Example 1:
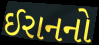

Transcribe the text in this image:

ઈરાનનો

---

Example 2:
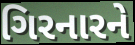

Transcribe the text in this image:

ગિરનારને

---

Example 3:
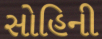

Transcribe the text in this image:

સોહિની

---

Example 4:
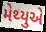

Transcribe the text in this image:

મેથ્યુએ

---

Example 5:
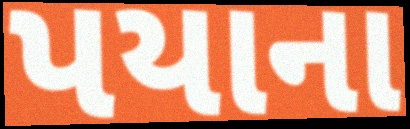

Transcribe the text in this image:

પયાના